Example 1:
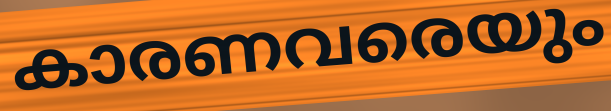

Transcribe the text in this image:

കാരണവരെയും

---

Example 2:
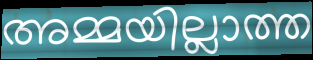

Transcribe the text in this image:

അമ്മയില്ലാത്ത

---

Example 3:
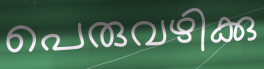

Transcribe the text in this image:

പെരുവഴിക്കു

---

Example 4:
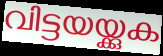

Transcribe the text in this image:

വിട്ടയയ്ക്കുക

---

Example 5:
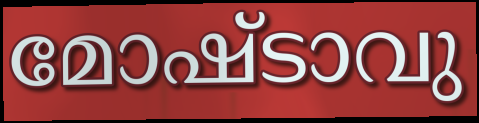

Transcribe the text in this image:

മോഷ്ടാവു